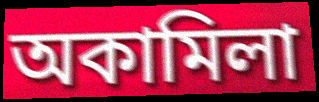
অকামিলা